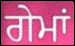
ਗੇਮਾਂ